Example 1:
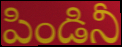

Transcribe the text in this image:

పిండినీ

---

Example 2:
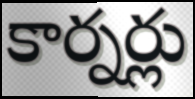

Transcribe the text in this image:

కార్నర్లు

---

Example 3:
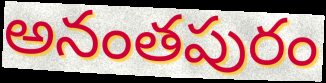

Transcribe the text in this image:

అనంతపురం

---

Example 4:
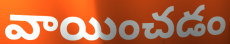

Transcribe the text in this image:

వాయించడం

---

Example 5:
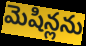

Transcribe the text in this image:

మెషిన్లను